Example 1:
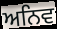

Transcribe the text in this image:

ਅਨਿਵ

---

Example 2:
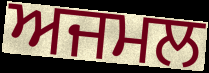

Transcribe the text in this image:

ਅਜਮਲ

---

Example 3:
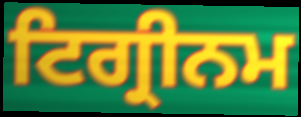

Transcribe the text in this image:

ਟਿਗ੍ਰੀਨਮ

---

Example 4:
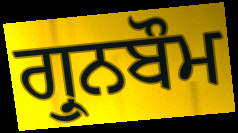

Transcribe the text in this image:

ਗ੍ਰੁਨਬੌਮ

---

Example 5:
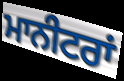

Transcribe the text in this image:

ਮਾਨੀਟਰਾਂ